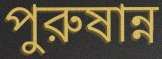
পুরুষান্ন